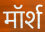
मॉर्श